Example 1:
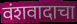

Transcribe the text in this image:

वंशवादाचा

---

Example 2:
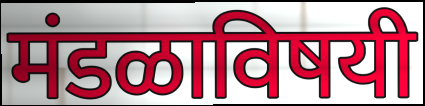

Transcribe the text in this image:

मंडळाविषयी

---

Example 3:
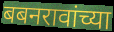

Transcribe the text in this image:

बबनरावांच्या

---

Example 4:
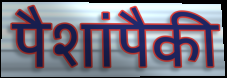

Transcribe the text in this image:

पैशांपैकी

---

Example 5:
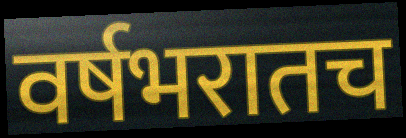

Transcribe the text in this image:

वर्षभरातच